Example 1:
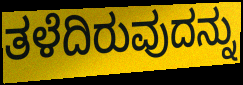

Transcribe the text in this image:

ತಳೆದಿರುವುದನ್ನು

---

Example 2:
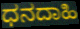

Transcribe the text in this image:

ಧನದಾಹಿ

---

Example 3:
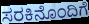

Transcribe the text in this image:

ಸರಕಿನೊಂದಿಗೆ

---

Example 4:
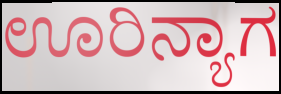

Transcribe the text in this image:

ಊರಿನ್ಯಾಗ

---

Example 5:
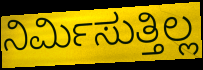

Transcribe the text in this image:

ನಿರ್ಮಿಸುತ್ತಿಲ್ಲ